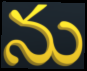
ను